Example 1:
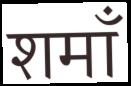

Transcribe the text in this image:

शमाँ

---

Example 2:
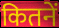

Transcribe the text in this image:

कितनें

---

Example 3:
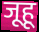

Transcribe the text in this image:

जूहू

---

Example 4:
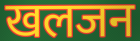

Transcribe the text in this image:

खलजन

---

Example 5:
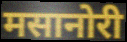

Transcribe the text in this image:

मसानोरी